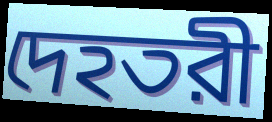
দেহতরী